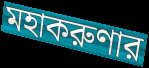
মহাকরুণার